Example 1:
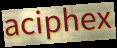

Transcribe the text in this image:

aciphex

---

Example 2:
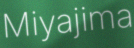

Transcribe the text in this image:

Miyajima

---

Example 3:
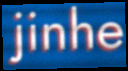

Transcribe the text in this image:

jinhe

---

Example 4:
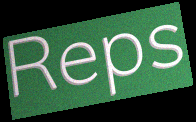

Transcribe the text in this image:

Reps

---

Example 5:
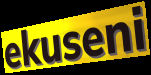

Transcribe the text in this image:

ekuseni